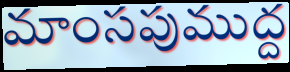
మాంసపుముద్ద